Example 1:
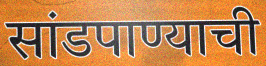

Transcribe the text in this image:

सांडपाण्याची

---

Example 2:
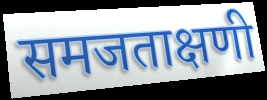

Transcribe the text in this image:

समजताक्षणी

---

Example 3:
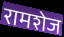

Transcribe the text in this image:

रामशेज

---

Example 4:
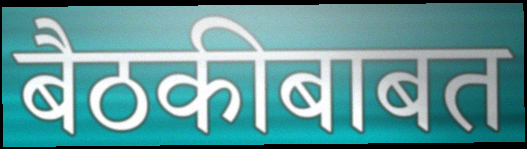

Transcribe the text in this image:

बैठकीबाबत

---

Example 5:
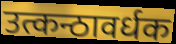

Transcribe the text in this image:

उत्कन्ठावर्धक